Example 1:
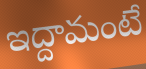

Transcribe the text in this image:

ఇద్దామంటే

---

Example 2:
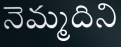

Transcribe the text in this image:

నెమ్మదిని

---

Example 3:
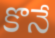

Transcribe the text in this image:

కొనే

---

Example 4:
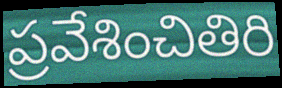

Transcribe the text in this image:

ప్రవేశించితిరి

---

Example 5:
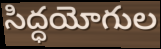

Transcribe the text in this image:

సిద్ధయోగుల